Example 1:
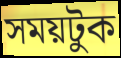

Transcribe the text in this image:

সময়টুক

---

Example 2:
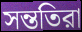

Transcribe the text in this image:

সন্ততিরা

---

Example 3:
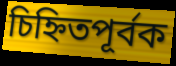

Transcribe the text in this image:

চিহ্নিতপূর্বক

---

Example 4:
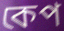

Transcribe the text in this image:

কেপ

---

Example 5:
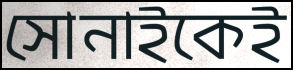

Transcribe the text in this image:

সোনাইকেই